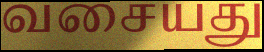
வசையது